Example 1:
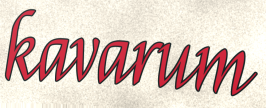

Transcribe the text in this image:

kavarum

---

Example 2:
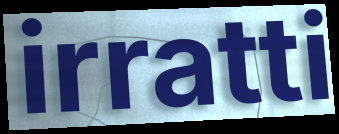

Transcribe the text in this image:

irratti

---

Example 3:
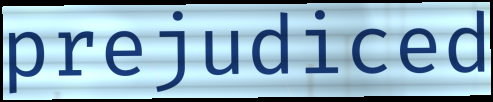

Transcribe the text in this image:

prejudiced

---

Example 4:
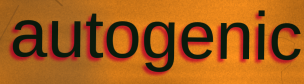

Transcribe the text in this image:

autogenic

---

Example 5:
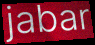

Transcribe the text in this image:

jabar